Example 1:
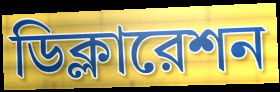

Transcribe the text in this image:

ডিক্লারেশন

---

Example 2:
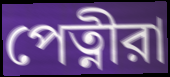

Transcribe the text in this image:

পেত্নীরা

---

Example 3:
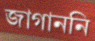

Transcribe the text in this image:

জাগাননি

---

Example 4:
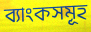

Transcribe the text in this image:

ব্যাংকসমূহ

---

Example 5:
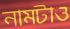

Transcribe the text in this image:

নামটাও